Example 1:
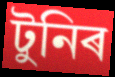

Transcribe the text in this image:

টুনিৰ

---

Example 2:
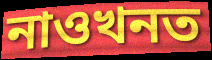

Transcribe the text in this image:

নাওখনত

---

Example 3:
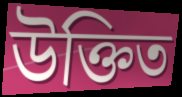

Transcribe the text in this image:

উক্তিত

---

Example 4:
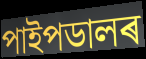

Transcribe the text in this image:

পাইপডালৰ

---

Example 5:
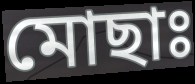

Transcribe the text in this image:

মোছাঃ